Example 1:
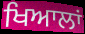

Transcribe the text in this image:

ਖਿਆਲਾਂ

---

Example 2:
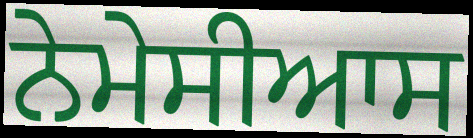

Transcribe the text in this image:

ਨੇਮੇਸੀਆਸ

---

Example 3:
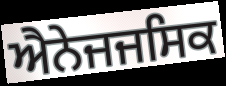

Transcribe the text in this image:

ਐਨੇਜਜਸਿਕ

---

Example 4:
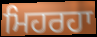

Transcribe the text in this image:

ਮਿਹਰਹਾ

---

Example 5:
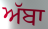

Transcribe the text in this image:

ਅੱਬਾ